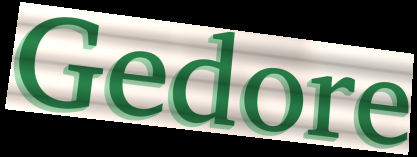
Gedore